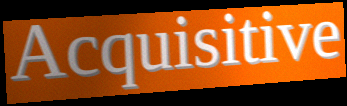
Acquisitive